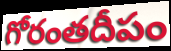
గోరంతదీపం